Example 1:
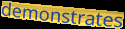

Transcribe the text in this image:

demonstrates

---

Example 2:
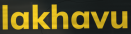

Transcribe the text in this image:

lakhavu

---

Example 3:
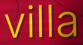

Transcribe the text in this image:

villa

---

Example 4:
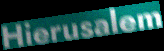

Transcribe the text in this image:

Hierusalem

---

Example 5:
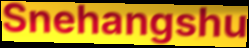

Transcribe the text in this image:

Snehangshu